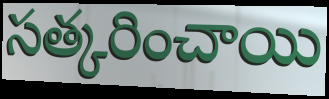
సత్కరించాయి